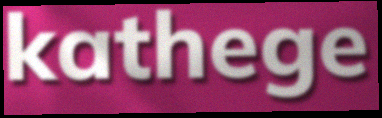
kathege